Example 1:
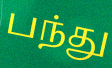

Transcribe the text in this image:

பந்து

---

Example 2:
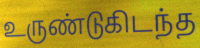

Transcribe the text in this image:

உருண்டுகிடந்த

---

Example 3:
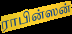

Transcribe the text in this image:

ராபின்ஸன்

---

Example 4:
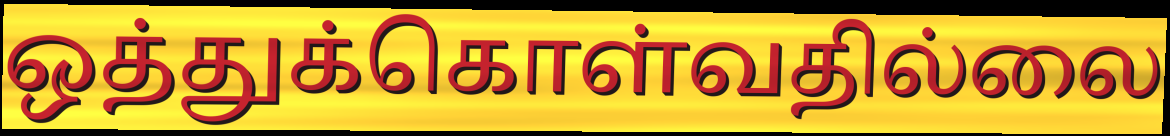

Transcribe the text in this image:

ஒத்துக்கொள்வதில்லை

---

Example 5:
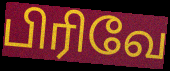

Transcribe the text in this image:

பிரிவே